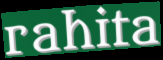
rahita